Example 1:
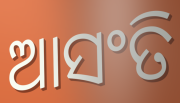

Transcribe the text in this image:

ଆସଂତି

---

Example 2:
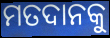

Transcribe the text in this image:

ମତଦାନକୁ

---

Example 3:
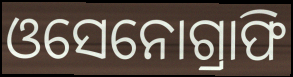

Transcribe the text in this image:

ଓସେନୋଗ୍ରାଫି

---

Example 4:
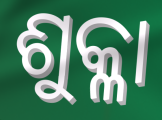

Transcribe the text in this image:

ଶୁକ୍ଳା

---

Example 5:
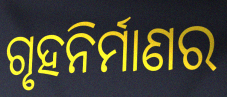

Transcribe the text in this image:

ଗୃହନିର୍ମାଣର